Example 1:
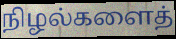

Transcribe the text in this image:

நிழல்களைத்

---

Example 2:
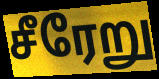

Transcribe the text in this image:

சீரேறு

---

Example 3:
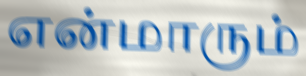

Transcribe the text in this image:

என்மாரும்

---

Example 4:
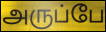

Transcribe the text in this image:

அருப்பே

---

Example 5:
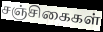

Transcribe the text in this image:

சஞ்சிகைகள்